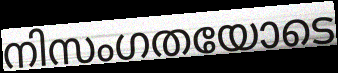
നിസംഗതയോടെ